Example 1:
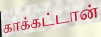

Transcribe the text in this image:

காக்கட்டான்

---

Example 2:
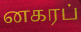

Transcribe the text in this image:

னகரப்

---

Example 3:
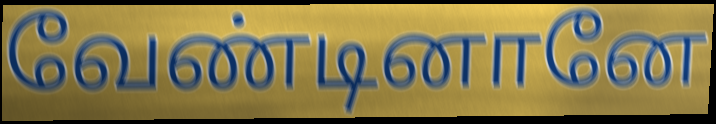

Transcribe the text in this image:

வேண்டினானே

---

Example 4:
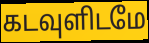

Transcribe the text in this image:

கடவுளிடமே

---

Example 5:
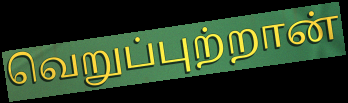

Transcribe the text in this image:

வெறுப்புற்றான்